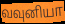
வவுனியா